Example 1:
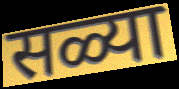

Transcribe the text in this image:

सळ्या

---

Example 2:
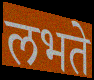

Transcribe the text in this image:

लभते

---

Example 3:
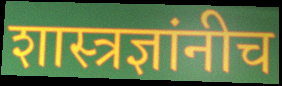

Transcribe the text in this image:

शास्त्रज्ञांनीच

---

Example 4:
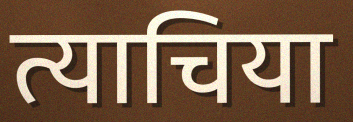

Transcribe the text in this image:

त्याचिया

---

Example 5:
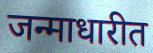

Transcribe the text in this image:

जन्माधारीत